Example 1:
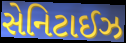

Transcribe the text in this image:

સેનિટાઈઝ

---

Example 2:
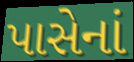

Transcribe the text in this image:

પાસેનાં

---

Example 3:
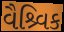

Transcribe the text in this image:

વૈશ્ર્વિક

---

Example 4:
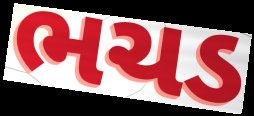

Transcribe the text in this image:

ભચડ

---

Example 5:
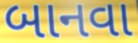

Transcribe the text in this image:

બાનવા